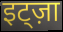
इट्ज़ा